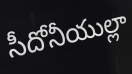
సీదోనీయుల్లా